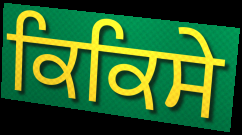
ਕਿਕਿਸੇ